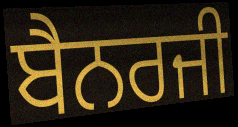
ਬੈਨਰਜੀ